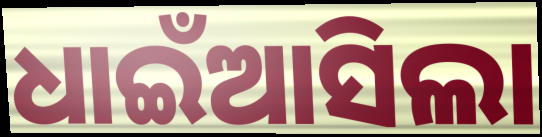
ଧାଇଁଆସିଲା